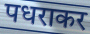
पधराकर